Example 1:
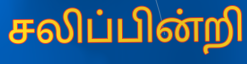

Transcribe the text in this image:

சலிப்பின்றி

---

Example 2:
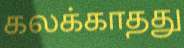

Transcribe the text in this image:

கலக்காதது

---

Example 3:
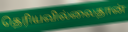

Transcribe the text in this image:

தெரியவில்லைதான்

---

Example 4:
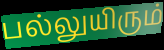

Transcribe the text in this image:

பல்லுயிரும்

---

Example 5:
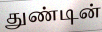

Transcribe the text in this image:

துண்டின்